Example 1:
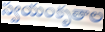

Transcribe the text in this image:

స్వయంకృతాల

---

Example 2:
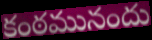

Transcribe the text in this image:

కంఠమునందు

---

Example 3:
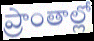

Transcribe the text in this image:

ప్రాంతాల్లో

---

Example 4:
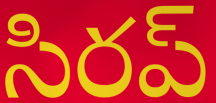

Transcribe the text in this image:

సిరప్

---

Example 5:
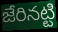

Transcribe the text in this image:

జేరినట్టి